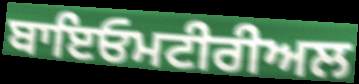
ਬਾਇਓਮਟੀਰੀਅਲ